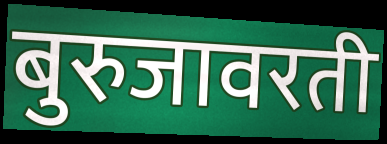
बुरुजावरती